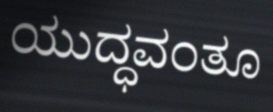
ಯುದ್ಧವಂತೂ